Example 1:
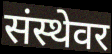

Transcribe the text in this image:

संस्थेवर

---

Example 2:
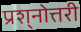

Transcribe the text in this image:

प्रश्नोत्तरी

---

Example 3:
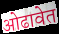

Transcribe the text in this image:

ओढावेत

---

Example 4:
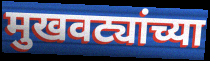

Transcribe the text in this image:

मुखवट्यांच्या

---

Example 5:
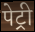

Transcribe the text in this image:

पेट्री